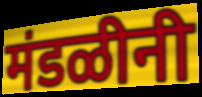
मंडळीनी